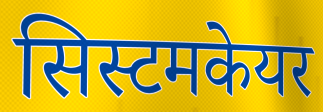
सिस्टमकेयर